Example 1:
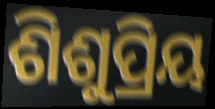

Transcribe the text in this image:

ଶିଶୁପ୍ରିୟ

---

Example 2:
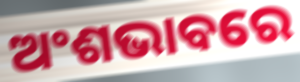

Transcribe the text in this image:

ଅଂଶଭାବରେ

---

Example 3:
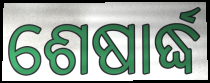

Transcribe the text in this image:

ଶେଷାର୍ଦ୍ଧ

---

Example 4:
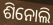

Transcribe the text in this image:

ଶିନୋଲି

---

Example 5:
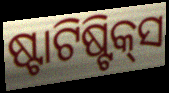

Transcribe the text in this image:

ଷ୍ଟାଟିଷ୍ଟିକ୍‍ସ